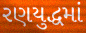
રણયુદ્ધમાં